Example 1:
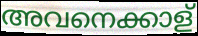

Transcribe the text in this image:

അവനെക്കാള്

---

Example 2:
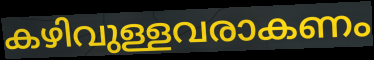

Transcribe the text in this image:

കഴിവുള്ളവരാകണം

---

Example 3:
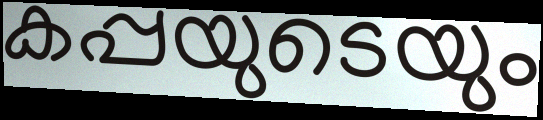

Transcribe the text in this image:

കപ്പയുടെയും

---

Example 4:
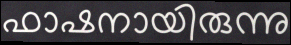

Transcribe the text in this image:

ഫാഷനായിരുന്നു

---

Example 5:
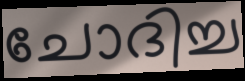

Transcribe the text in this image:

ചോദിച്ച